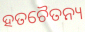
ହତଚୈତନ୍ୟ